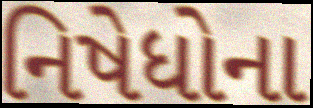
નિષેધોના